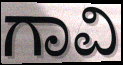
ಗಾವಿ